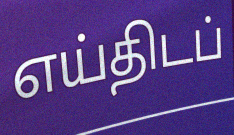
எய்திடப்